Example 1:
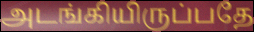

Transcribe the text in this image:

அடங்கியிருப்பதே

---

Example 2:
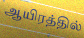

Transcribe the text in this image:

ஆயிரத்தில்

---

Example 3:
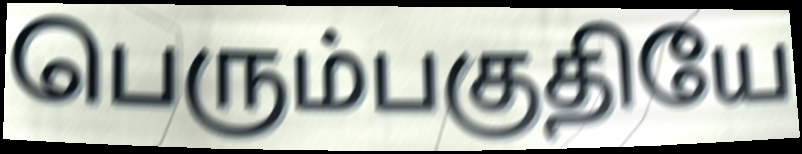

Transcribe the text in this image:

பெரும்பகுதியே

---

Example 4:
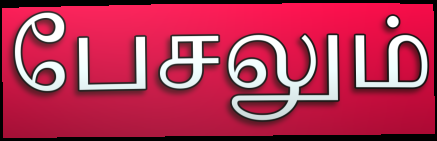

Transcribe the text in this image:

பேசலும்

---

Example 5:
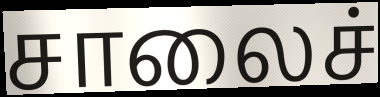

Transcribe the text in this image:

சாலைச்